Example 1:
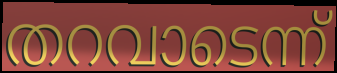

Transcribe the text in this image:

തറവാടെന്ന്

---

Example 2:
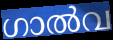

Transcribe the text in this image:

ഗാൽവ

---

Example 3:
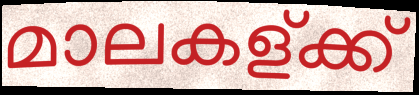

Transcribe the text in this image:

മാലകള്ക്ക്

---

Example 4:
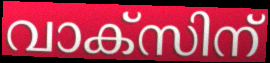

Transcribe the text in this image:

വാക്സിന്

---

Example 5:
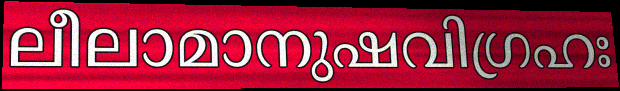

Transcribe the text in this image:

ലീലാമാനുഷവിഗ്രഹഃ